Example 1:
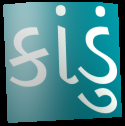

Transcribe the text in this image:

કાંડું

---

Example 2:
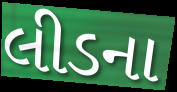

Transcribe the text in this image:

લીડના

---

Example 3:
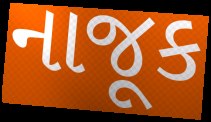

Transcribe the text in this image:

નાજૂક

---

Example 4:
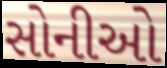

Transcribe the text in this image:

સોનીઓ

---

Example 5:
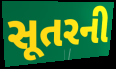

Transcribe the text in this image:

સૂતરની